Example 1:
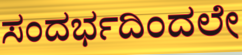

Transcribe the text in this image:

ಸಂದರ್ಭದಿಂದಲೇ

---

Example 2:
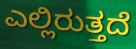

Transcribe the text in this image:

ಎಲ್ಲಿರುತ್ತದೆ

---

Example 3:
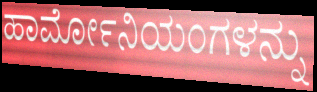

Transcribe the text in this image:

ಹಾರ್ಮೋನಿಯಂಗಳನ್ನು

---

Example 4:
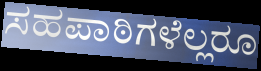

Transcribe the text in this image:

ಸಹಪಾಠಿಗಳೆಲ್ಲರೂ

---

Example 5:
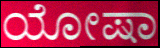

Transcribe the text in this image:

ಯೋಷಾ